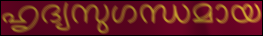
ഹൃദ്യസുഗന്ധമായ